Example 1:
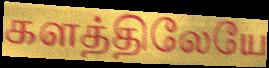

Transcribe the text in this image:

களத்திலேயே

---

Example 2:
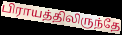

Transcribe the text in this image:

பிராயத்திலிருந்தே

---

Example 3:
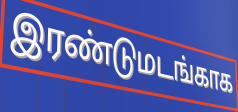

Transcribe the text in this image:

இரண்டுமடங்காக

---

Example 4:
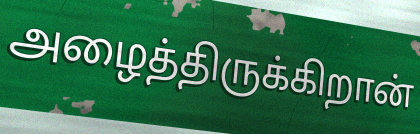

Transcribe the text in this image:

அழைத்திருக்கிறான்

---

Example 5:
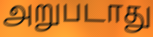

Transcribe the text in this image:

அறுபடாது